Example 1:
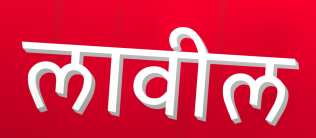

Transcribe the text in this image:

लावील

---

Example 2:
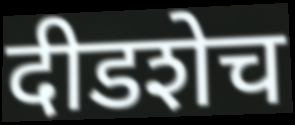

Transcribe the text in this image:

दीडशेच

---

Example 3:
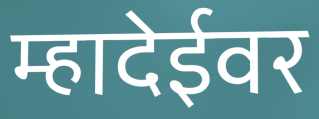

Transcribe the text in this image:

म्हादेईवर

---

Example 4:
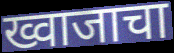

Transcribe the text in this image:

ख्वाजाचा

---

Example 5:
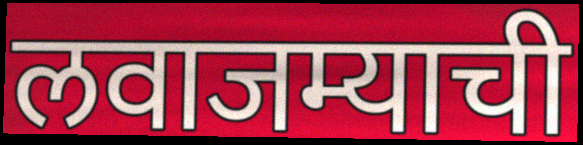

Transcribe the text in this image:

लवाजम्याची